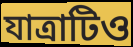
যাত্রাটিও